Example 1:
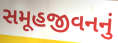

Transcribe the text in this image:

સમૂહજીવનનું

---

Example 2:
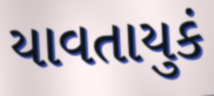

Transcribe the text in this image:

યાવતાયુકં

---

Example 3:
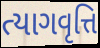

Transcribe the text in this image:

ત્યાગવૃત્તિ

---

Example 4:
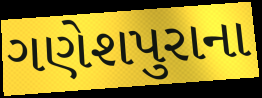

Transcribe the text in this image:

ગણેશપુરાના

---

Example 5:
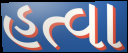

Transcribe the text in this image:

હત્વા